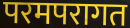
परमपरागत